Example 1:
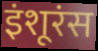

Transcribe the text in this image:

इंशूरंस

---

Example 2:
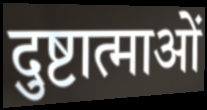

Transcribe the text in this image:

दुष्टात्माओं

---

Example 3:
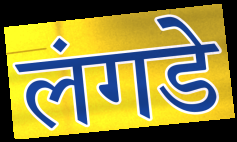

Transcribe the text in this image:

लंगडे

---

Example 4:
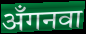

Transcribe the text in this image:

अँगनवा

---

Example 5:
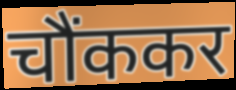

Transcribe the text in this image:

चौंककर